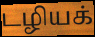
டழியக்